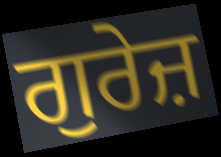
ਗੁਰੇਜ਼